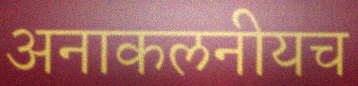
अनाकलनीयच